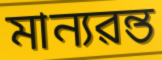
মান্যৱন্ত